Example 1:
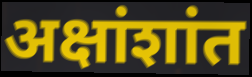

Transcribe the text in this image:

अक्षांशांत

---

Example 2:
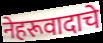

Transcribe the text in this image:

नेहरूवादाचे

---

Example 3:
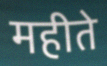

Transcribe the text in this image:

महीते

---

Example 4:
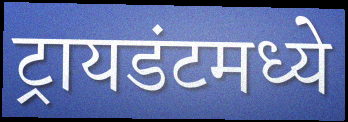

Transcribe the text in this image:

ट्रायडंटमध्ये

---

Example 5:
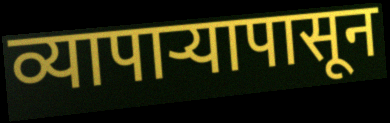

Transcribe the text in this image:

व्यापाऱ्यापासून